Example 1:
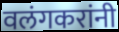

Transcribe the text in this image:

वलंगकरांनी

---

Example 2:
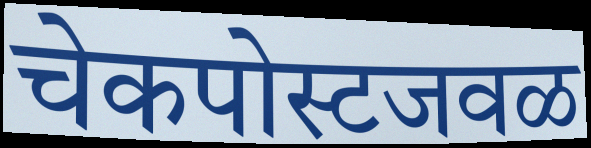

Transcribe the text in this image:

चेकपोस्टजवळ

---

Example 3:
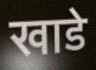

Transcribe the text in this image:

खाडे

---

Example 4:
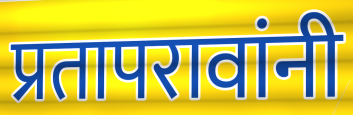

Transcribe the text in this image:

प्रतापरावांनी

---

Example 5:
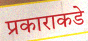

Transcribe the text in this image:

प्रकाराकडे